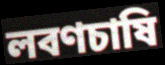
লবণচাষি